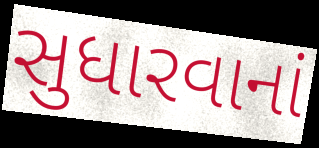
સુધારવાનાં